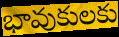
భావుకులకు